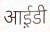
आई़डी